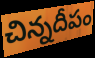
చిన్నదీపం